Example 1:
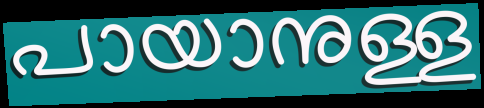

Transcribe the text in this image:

പായാനുള്ള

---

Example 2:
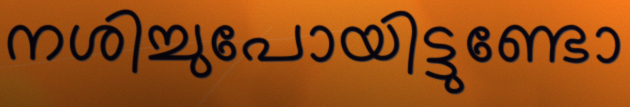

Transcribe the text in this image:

നശിച്ചുപോയിട്ടുണ്ടോ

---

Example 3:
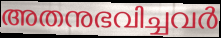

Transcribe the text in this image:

അതനുഭവിച്ചവർ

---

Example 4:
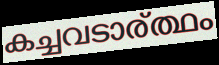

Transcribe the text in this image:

കച്ചവടാര്ത്ഥം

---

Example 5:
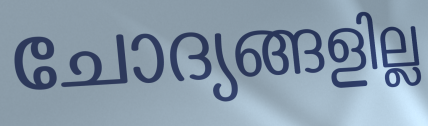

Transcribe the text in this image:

ചോദ്യങ്ങളില്ല